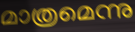
മാത്രമെന്നു